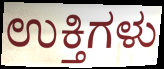
ಉಕ್ತಿಗಳು